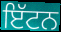
ਇੱਟਨ